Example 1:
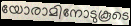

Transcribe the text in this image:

യോരാമിനോടുകൂടെ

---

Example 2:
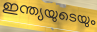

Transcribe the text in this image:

ഇന്ത്യയുടെയും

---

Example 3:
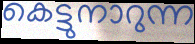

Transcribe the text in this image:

കെട്ടുനാറുന്ന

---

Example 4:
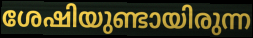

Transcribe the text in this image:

ശേഷിയുണ്ടായിരുന്ന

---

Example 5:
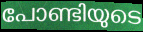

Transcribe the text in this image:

പോണ്ടിയുടെ